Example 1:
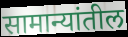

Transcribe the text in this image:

सामान्यांतील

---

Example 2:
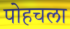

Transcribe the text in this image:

पोहचला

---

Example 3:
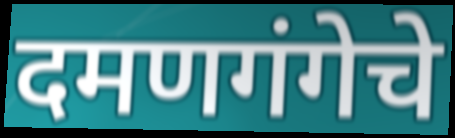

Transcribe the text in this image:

दमणगंगेचे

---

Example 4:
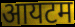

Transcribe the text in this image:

आयटम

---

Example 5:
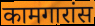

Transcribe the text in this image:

कामगारांस